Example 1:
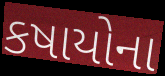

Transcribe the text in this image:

કષાયોના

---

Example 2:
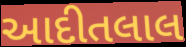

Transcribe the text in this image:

આદીતલાલ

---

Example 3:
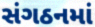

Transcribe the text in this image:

સંગઠનમાં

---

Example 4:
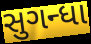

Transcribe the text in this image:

સુગન્ધા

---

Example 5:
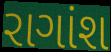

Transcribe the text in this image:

રાગાંશ